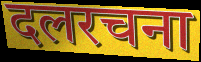
दलरचना